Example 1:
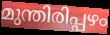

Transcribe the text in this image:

മുന്തിരിപ്പഴം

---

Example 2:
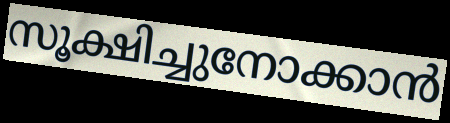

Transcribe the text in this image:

സൂക്ഷിച്ചുനോക്കാൻ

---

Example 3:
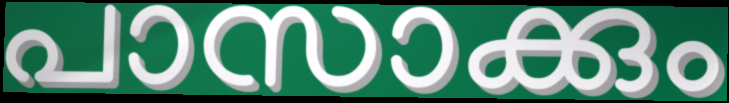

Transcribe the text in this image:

പാസാക്കും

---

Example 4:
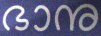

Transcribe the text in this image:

ഭാനു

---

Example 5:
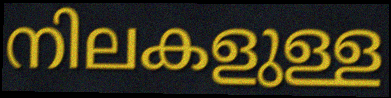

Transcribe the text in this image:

നിലകളുള്ള